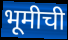
भूमीची